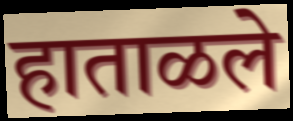
हाताळले